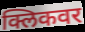
क्लिकवर